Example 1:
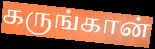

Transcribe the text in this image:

கருங்கான்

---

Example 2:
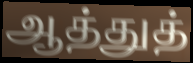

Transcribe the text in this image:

ஆத்துத்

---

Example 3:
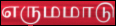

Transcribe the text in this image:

எருமமாடு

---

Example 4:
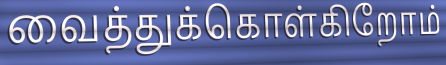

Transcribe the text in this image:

வைத்துக்கொள்கிறோம்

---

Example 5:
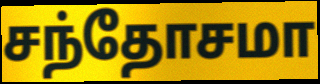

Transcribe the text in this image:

சந்தோசமா